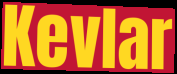
Kevlar